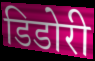
डिडोरी